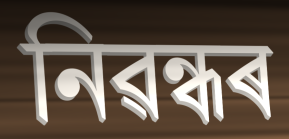
নিৱন্ধৰ